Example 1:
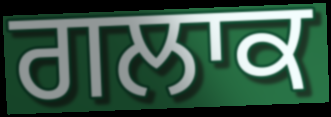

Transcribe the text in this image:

ਗਲਾਕ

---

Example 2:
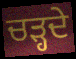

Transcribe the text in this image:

ਚਡ਼੍ਹਦੇ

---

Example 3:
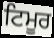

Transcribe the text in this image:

ਟਿਮੂਰ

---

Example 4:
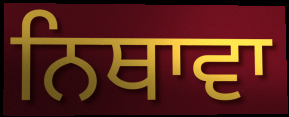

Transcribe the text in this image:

ਨਿਥਾਵਾ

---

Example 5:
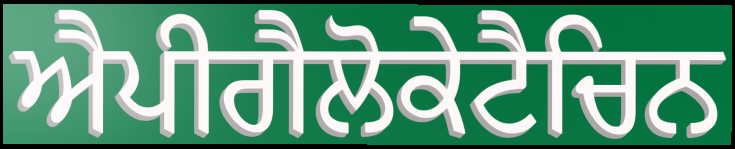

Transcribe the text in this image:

ਐਪੀਗੈਲੋਕੇਟੈਚਿਨ